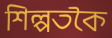
শিল্পতকৈ